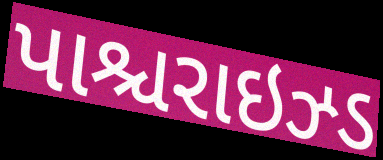
પાશ્ચરાઇઝ્ડ